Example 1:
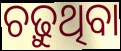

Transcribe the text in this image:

ଚଢ଼ୁଥିବା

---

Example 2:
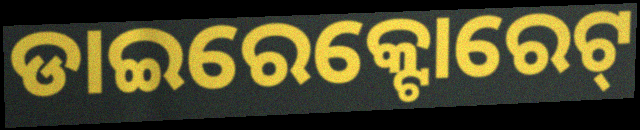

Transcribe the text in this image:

ଡାଇରେକ୍ଟୋରେଟ୍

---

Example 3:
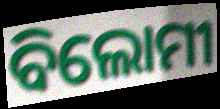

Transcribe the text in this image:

ବିଲୋମୀ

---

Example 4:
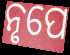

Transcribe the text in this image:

ନୃପେ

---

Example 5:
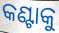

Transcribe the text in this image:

କଣ୍ଟାକୁ